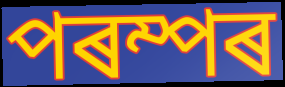
পৰম্পৰ